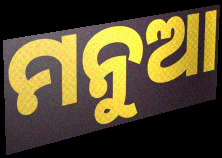
ମନୁଆ